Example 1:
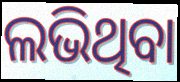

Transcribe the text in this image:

ଲଭିଥିବା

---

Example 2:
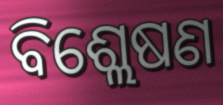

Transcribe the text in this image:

ବିଶ୍ଲେଷଣ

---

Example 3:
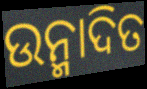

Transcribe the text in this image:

ଉନ୍ମାଦିତ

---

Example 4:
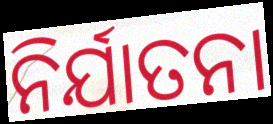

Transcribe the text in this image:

ନିର୍ଯାତନା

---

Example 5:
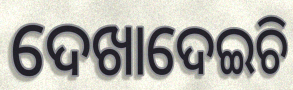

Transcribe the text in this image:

ଦେଖାଦେଇଚି